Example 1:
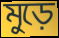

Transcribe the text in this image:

মুড়ে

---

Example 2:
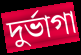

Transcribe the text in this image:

দুর্ভাগা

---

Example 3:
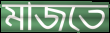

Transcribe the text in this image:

মাজতে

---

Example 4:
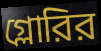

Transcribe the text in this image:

গ্লোরির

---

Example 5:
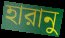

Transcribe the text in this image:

হারানু